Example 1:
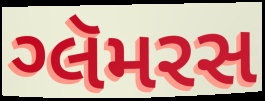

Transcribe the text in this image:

ગ્લૅમરસ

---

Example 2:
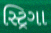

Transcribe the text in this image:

સ્ટ્રિગા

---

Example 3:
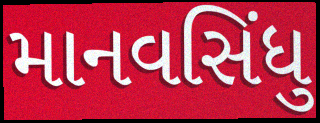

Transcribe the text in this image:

માનવસિંધુ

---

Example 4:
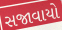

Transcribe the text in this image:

સજાવાયો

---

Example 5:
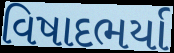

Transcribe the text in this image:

વિષાદભર્યા